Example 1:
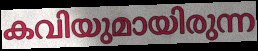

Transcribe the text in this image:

കവിയുമായിരുന്ന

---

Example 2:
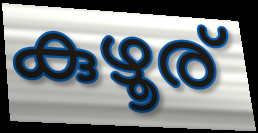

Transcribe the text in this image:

കുഴൂര്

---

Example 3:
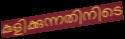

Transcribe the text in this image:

കുളിക്കുന്നതിനിടെ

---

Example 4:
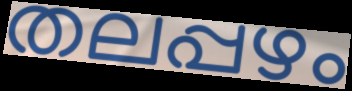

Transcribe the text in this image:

തലപ്പഴം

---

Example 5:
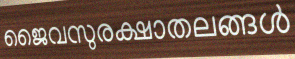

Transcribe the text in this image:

ജൈവസുരക്ഷാതലങ്ങൾ